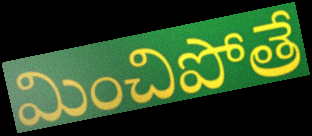
మించిపోతే